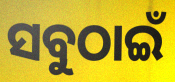
ସବୁଠାଇଁ